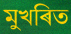
মুখৰিত